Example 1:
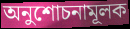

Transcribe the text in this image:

অনুশোচনামূলক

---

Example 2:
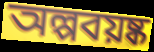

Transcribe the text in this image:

অল্পবয়ষ্ক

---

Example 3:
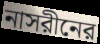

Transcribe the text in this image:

নাসরীনের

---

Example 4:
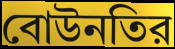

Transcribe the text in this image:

বোউনতির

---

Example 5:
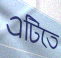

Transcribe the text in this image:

এটিতে